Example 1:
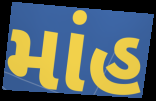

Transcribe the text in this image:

માંહ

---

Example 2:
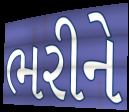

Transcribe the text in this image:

ભરીને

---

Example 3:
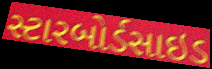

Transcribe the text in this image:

સ્ટારબોર્ડસાઇડ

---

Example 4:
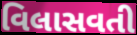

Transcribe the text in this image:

વિલાસવતી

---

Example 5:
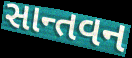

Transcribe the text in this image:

સાન્તવન